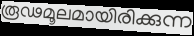
രൂഢമൂലമായിരിക്കുന്ന